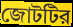
জোটটির